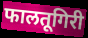
फालतूगिरी